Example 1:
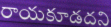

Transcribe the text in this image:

రాయకూడదని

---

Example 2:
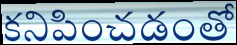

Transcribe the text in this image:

కనిపించడంతో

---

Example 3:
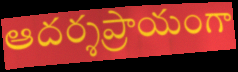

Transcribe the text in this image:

ఆదర్శప్రాయంగా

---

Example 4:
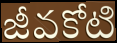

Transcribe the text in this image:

జీవకోటి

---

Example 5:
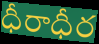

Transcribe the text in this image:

ధీరాధీర